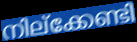
നില്ക്കേണ്ടി